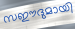
സഈദുമായി